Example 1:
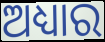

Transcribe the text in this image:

ଅଧ୍ୟାର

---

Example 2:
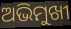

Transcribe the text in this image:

ଅଭିମୁଖୀ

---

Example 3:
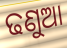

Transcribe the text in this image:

ଢଣୁଆ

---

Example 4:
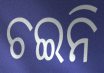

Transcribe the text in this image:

ଚଇନି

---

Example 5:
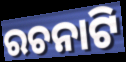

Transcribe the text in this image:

ରଚନାଟି